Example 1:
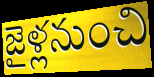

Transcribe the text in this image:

జైళ్లనుంచి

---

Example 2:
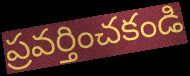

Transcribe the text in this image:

ప్రవర్తించకండి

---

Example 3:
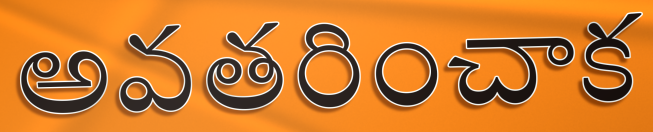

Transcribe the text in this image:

అవతరించాక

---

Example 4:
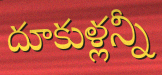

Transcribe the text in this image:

దూకుళ్లన్నీ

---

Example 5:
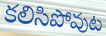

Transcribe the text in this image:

కలిసిపోవుట